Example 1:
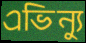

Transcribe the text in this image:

এভিন্যু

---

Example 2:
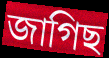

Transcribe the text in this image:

জাগিছ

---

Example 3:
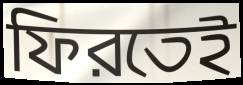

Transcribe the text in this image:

ফিরতেই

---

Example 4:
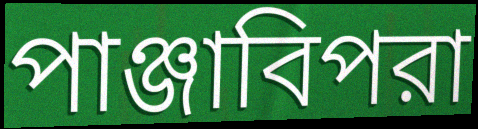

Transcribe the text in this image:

পাঞ্জাবিপরা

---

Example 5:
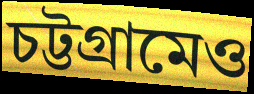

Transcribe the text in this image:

চট্টগ্রামেও